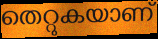
തെറ്റുകയാണ്